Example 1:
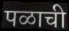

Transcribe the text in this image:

पळाची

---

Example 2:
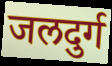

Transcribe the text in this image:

जलदुर्ग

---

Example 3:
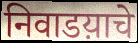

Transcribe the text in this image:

निवाडय़ाचे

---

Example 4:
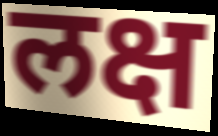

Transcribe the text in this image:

लक्ष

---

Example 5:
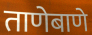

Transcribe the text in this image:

ताणेबाणे